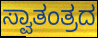
ಸ್ವಾತಂತ್ರದ